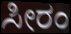
ಸೀರಂ